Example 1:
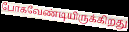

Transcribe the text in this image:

போகவேண்டியிருக்கிறது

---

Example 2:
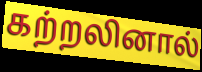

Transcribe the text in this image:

கற்றலினால்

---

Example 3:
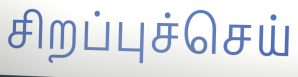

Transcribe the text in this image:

சிறப்புச்செய்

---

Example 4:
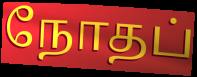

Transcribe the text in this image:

நோதப்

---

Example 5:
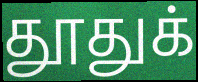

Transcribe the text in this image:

தூதுக்